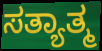
ಸತ್ಯಾತ್ಮ